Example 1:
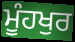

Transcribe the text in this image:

ਮੂੰਹਖੁਰ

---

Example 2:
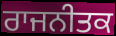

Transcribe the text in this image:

ਰਾਜਨੀਤਕ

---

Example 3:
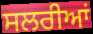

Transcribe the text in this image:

ਸਲਰੀਆਂ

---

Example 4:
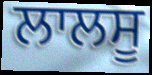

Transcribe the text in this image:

ਲਾਲਸੂ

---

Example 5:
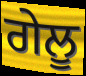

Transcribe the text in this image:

ਗੇਲੂ